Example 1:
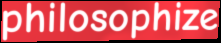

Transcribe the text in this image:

philosophize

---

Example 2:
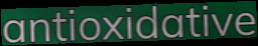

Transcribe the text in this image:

antioxidative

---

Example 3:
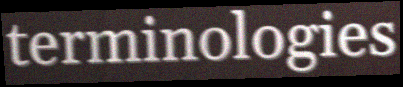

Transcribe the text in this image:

terminologies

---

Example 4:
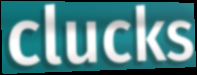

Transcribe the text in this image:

clucks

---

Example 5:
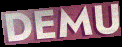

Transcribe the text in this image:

DEMU